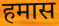
हमास